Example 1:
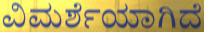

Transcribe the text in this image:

ವಿಮರ್ಶೆಯಾಗಿದೆ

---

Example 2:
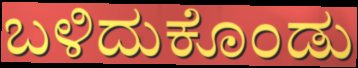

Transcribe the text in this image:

ಬಳಿದುಕೊಂಡು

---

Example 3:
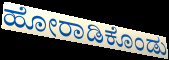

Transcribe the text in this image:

ಹೋರಾಡಿಕೊಂಡು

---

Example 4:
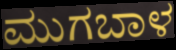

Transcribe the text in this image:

ಮುಗಬಾಳ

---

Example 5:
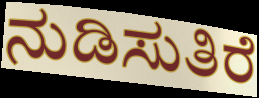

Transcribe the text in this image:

ನುಡಿಸುತಿರೆ